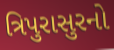
ત્રિપુરાસુરનો